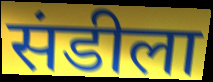
संडीला